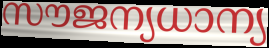
സൗജന്യധാന്യ